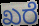
ಖರೆ